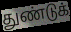
துண்டுக்